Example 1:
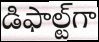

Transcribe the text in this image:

డిఫాల్ట్‌గా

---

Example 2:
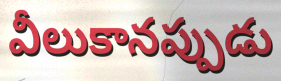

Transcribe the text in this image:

వీలుకానప్పుడు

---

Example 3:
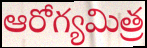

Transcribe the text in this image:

ఆరోగ్యమిత్ర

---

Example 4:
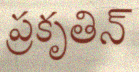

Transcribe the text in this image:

ప్రకృతిన్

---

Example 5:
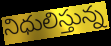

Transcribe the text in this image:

నిధులిస్తున్న